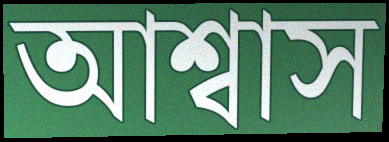
আশ্বাস